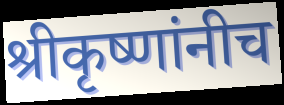
श्रीकृष्णांनीच